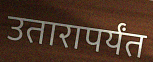
उतारापर्यंत